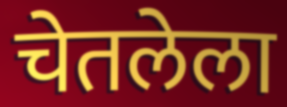
चेतलेला